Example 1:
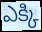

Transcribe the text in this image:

ఎక్కి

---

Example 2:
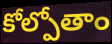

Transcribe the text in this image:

కోల్పోతాం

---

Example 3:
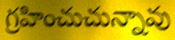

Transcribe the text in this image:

గ్రహించుచున్నావు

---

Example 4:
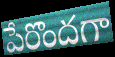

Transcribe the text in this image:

పేరొందగా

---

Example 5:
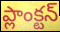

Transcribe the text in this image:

ప్లాంక్టన్